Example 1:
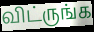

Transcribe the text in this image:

விட்ருங்க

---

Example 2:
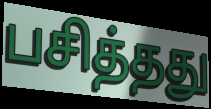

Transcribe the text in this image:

பசித்தது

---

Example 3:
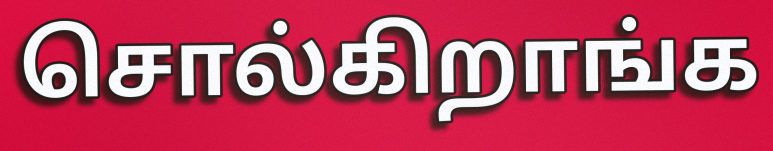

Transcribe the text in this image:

சொல்கிறாங்க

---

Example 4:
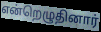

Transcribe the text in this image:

என்றெழுதினார்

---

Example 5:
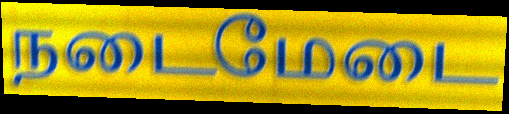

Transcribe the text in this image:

நடைமேடை